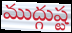
ముద్గుష్ట